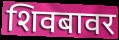
शिवबावर